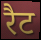
रैट